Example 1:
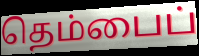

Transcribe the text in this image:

தெம்பைப்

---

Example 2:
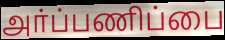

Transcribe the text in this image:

அர்ப்பணிப்பை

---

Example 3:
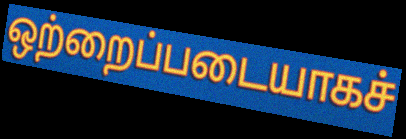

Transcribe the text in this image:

ஒற்றைப்படையாகச்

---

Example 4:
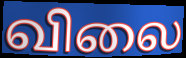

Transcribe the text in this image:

விலை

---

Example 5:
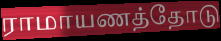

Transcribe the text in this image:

ராமாயணத்தோடு